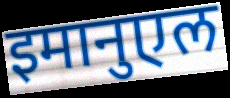
इमानुएल